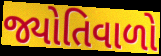
જ્યોતિવાળો